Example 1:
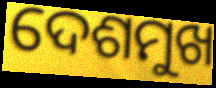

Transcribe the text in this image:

ଦେଶମୁଖ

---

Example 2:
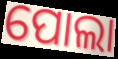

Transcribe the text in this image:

ପୋଲା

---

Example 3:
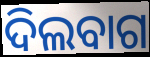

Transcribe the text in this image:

ଦିଲବାଗ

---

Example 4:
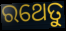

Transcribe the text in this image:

ରଥେତୁ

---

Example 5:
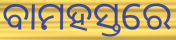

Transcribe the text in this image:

ବାମହସ୍ତରେ